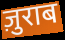
ज़ुराब